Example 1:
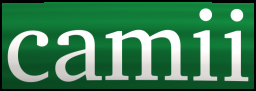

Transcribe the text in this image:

camii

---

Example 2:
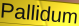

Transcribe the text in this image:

Pallidum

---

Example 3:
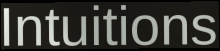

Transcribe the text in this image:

Intuitions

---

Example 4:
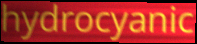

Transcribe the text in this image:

hydrocyanic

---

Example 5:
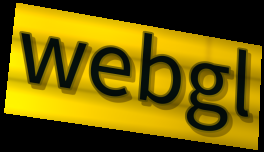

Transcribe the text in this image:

webgl